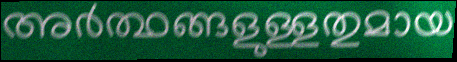
അർത്ഥങ്ങളുള്ളതുമായ